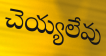
చెయ్యలేవు